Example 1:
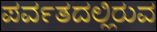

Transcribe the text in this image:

ಪರ್ವತದಲ್ಲಿರುವ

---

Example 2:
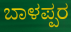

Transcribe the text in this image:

ಬಾಳಪ್ಪರ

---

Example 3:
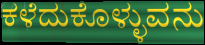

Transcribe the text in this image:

ಕಳೆದುಕೊಳ್ಳುವನು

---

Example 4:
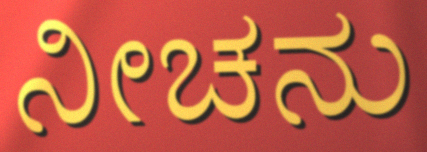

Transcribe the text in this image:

ನೀಚನು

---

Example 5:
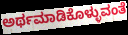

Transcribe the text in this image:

ಅರ್ಥಮಾಡಿಕೊಳ್ಳುವಂತೆ